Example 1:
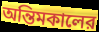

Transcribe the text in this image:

অন্তিমকালের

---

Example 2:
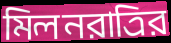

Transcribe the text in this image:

মিলনরাত্রির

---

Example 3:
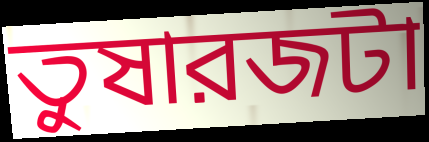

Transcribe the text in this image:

তুষারজটা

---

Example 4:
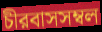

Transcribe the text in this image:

চীরবাসসম্বল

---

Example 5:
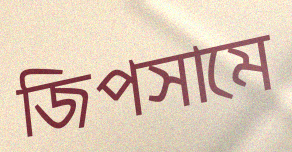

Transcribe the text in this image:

জিপসামে